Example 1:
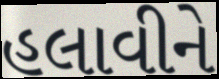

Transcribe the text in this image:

હલાવીને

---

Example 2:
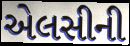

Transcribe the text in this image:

એલસીની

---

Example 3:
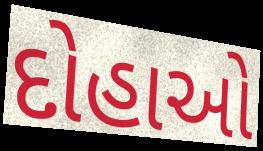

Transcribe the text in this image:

દોહાઓ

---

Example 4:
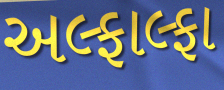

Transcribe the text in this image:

અલ્ફાલ્ફા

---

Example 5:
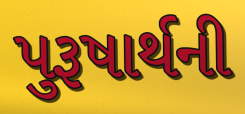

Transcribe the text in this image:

પુરૂષાર્થની